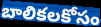
బాలికలకోసం